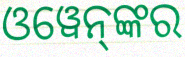
ଓୱେନ୍‌ଙ୍କର